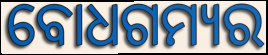
ବୋଧଗମ୍ୟର